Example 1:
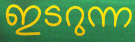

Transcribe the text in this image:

ഇടറുന്ന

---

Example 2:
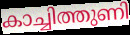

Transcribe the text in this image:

കാച്ചിത്തുണി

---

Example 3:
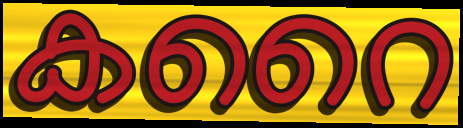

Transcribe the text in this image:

കറൈ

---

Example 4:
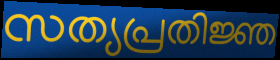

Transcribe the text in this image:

സത്യപ്രതിജ്ഞ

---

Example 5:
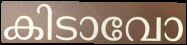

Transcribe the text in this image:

കിടാവോ